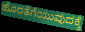
ಹೊರತೆಗೆಯುವುದಕ್ಕೆ